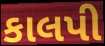
કાલપી